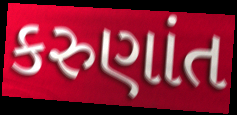
કરુણાંત